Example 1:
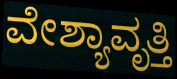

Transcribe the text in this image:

ವೇಶ್ಯಾವೃತ್ತಿ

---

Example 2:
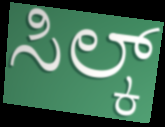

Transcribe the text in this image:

ಸಿಲ್ಕ್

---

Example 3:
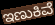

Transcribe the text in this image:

ಇಣುಕಿವೆ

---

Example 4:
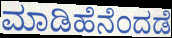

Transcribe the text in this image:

ಮಾಡಿಹೆನೆಂದಡೆ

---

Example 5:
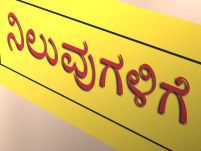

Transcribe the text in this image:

ನಿಲುವುಗಳಿಗೆ